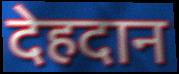
देहदान